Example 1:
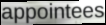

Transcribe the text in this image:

appointees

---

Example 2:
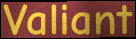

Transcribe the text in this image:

Valiant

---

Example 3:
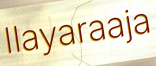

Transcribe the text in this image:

Ilayaraaja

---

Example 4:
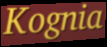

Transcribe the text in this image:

Kognia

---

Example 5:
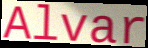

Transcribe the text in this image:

Alvar